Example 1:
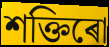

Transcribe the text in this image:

শক্তিৰো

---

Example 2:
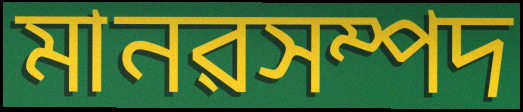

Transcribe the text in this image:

মানৱসম্পদ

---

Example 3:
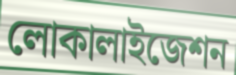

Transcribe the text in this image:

লোকালাইজেশন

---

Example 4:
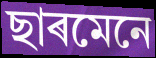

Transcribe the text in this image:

ছাৰমেনে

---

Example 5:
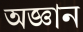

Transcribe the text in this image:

অজ্ঞান